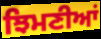
ਝਿਮਣੀਆਂ